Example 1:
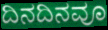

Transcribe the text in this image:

ದಿನದಿನವೂ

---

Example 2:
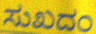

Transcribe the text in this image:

ಸುಖದಂ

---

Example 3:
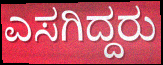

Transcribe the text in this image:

ಎಸಗಿದ್ದರು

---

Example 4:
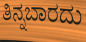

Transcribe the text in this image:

ತಿನ್ನಬಾರದು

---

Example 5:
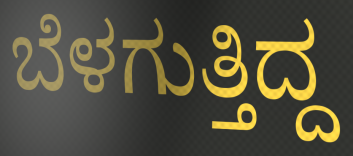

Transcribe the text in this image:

ಬೆಳಗುತ್ತಿದ್ದ